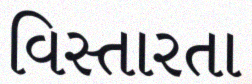
વિસ્તારતા